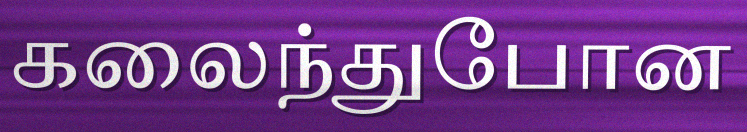
கலைந்துபோன